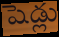
షెడ్లు